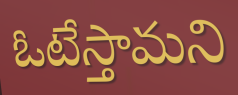
ఓటేస్తామని